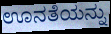
ಊನತೆಯನ್ನು